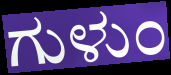
ಗುಳುಂ